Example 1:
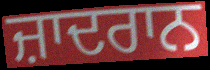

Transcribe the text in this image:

ਜ਼ਾਦਰਾਨ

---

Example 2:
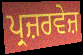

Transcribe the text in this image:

ਪ੍ਰਜ਼ਰਵੇਜ਼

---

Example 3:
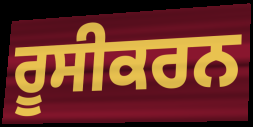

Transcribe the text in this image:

ਰੂਸੀਕਰਨ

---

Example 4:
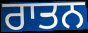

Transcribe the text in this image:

ਰਾਤਨ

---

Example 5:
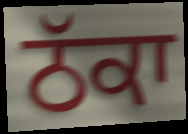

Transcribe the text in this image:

ਠੱਕਾ